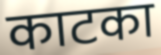
काटका